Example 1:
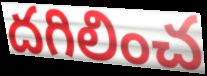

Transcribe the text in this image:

దగిలించ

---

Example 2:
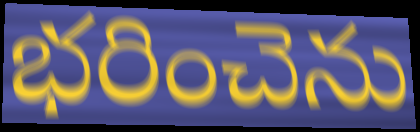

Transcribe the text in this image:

భరించెను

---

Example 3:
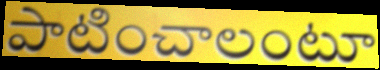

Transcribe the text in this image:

పాటించాలంటూ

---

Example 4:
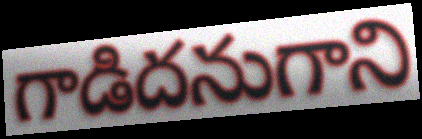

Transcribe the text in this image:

గాడిదనుగాని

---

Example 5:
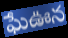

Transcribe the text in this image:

ఘేఊన